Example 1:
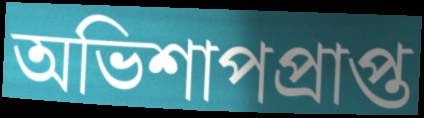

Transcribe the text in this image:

অভিশাপপ্রাপ্ত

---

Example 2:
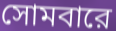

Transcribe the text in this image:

সোমবারে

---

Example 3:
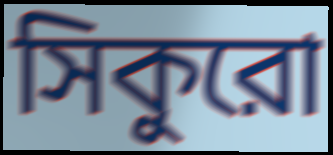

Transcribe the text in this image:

সিকুরো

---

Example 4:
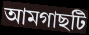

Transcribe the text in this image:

আমগাছটি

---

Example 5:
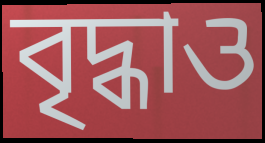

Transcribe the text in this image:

বৃদ্ধাও